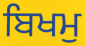
ਬਿਖਮੁ